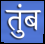
तुंब